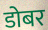
डोबर